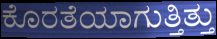
ಕೊರತೆಯಾಗುತ್ತಿತ್ತು